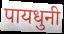
पायधुनी